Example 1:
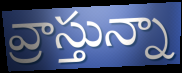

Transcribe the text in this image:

వ్రాస్తున్నా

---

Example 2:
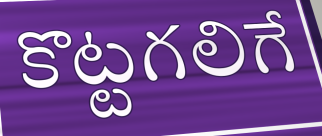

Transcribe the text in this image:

కొట్టగలిగే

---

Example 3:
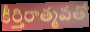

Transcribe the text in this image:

కీర్తిరాత్మవతో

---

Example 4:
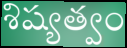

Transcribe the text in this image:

శిష్యత్వం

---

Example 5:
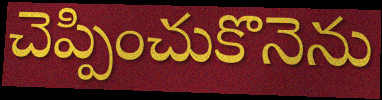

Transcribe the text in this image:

చెప్పించుకొనెను